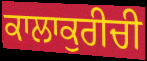
ਕਾਲਾਕੁਰੀਚੀ